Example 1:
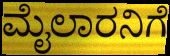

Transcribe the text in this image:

ಮೈಲಾರನಿಗೆ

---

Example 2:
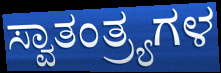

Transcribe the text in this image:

ಸ್ವಾತಂತ್ರ್ಯಗಳ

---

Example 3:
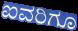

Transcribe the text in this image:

ಐವರಿಗೂ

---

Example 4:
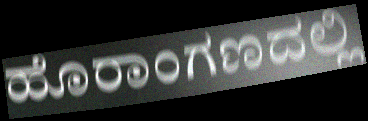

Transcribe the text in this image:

ಹೊರಾಂಗಣದಲ್ಲಿ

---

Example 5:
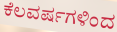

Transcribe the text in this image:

ಕೆಲವರ್ಷಗಳಿಂದ